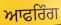
ਆਫਰਿੰਗ